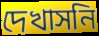
দেখাসনি